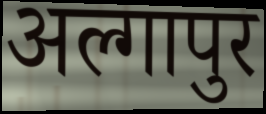
अल्गापुर